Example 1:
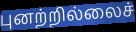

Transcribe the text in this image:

புனற்றில்லைச்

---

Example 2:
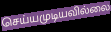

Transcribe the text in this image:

செய்யமுடியவில்லை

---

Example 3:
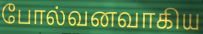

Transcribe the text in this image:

போல்வனவாகிய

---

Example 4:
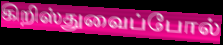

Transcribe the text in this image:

கிறிஸ்துவைப்போல்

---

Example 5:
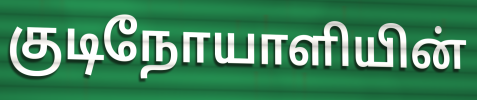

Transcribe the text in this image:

குடிநோயாளியின்